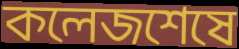
কলেজশেষে